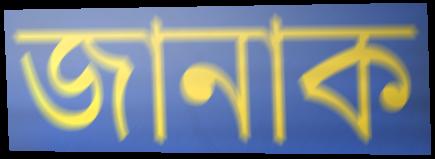
জানাক